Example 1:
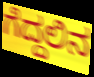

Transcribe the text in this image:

ಗೆದ್ದಲಿನ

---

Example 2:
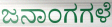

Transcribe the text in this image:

ಜನಾಂಗಗಳೆ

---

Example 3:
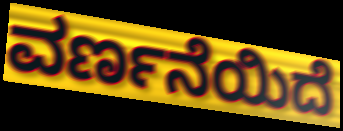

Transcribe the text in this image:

ವರ್ಣನೆಯಿದೆ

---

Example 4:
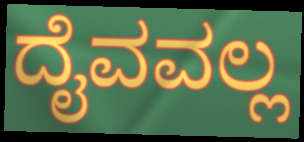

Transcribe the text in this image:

ದೈವವಲ್ಲ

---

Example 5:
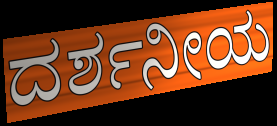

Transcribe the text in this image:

ದರ್ಶನೀಯ